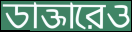
ডাক্তারেও